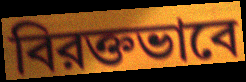
বিরক্তভাবে